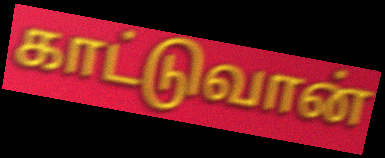
காட்டுவான்